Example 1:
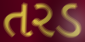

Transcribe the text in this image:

તરડ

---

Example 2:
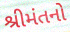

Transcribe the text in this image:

શ્રીમંતનો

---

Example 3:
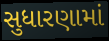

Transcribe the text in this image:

સુધારણામાં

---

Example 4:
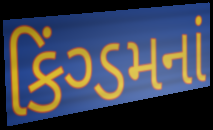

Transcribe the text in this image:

કિંગ્ડમનાં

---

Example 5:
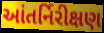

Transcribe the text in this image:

આંતર્નિરીક્ષણ